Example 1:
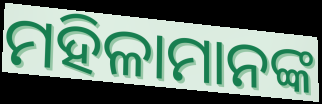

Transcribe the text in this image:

ମହିଳାମାନଙ୍କ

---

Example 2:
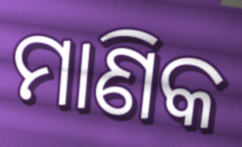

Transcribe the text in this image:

ମାଣିକ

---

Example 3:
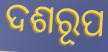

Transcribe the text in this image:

ଦଶରୂପ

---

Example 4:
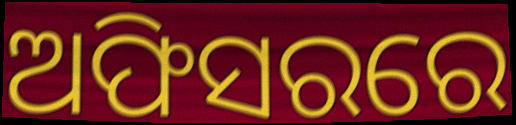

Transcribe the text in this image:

ଅଫିସରରେ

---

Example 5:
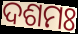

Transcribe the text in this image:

ଦଶମଃ